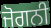
ਜੋਗਨੀ